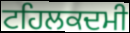
ਟਹਿਲਕਦਮੀ